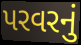
પરવરનું